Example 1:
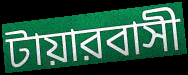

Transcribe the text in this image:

টায়ারবাসী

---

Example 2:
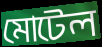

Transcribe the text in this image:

মোটেল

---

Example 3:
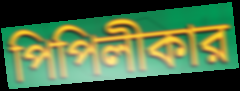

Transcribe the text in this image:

পিপিলীকার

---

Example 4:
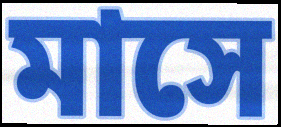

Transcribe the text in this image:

মাসে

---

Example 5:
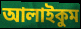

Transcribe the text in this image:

আলাইকুম